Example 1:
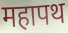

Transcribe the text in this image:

महापथ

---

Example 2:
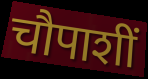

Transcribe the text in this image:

चौपाशीं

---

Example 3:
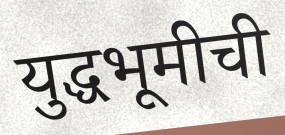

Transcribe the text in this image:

युद्धभूमीची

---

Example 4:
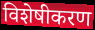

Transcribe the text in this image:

विशेषीकरण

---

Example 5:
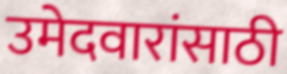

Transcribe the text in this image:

उमेदवारांसाठी